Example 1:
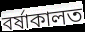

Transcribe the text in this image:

বৰ্ষাকালত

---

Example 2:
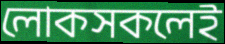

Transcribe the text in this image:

লোকসকলেই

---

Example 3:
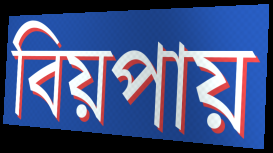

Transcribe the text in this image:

বিয়পায়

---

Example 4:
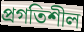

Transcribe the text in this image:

প্ৰগতিশীল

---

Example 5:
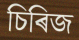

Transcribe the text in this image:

চিৰিজ